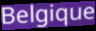
Belgique